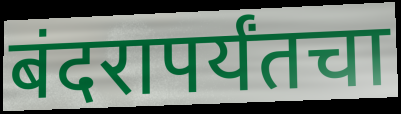
बंदरापर्यंतचा